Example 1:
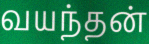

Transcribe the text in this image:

வயந்தன்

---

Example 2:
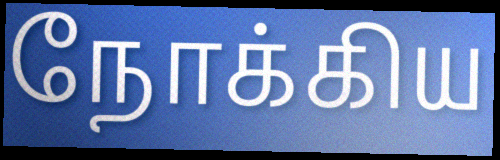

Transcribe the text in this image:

நோக்கிய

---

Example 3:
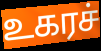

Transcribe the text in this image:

உகரச்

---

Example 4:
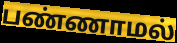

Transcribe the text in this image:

பண்ணாமல்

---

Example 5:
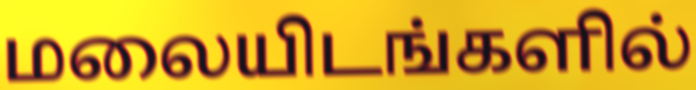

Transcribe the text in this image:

மலையிடங்களில்